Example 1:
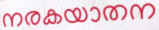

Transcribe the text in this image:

നരകയാതന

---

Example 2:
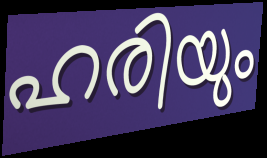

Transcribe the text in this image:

ഹരിയും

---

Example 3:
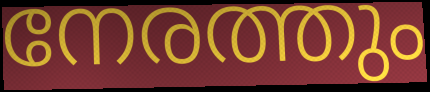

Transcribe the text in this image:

നേരത്തും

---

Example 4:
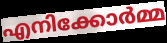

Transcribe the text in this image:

എനിക്കോർമ്മ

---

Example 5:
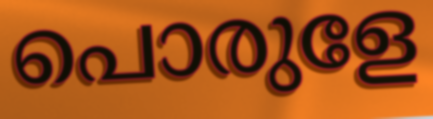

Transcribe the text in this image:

പൊരുളേ